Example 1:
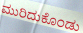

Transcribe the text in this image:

ಮುರಿದುಕೊಂಡು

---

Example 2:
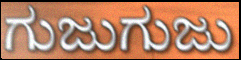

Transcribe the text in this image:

ಗುಜುಗುಜು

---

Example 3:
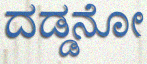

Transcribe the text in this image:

ದಡ್ಡನೋ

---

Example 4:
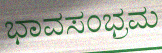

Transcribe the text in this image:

ಭಾವಸಂಭ್ರಮ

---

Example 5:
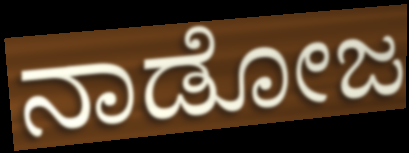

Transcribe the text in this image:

ನಾಡೋಜ